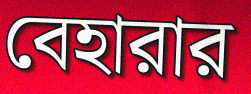
বেহারার